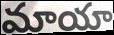
మాయా